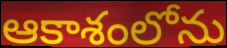
ఆకాశంలోను